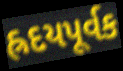
હ્રદયપૂર્વક